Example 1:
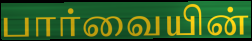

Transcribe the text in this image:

பார்வையின்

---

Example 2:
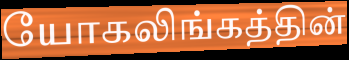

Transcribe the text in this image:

யோகலிங்கத்தின்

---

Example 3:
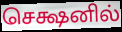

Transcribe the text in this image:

செக்ஷனில்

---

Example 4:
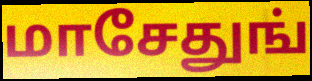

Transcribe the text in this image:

மாசேதுங்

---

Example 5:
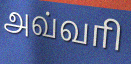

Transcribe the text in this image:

அவ்வரி